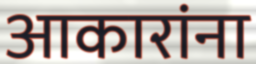
आकारांना